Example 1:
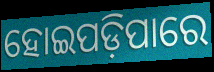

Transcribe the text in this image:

ହୋଇପଡ଼ିପାରେ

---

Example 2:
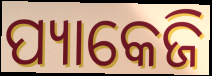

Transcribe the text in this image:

ପ୍ୟାକେଜି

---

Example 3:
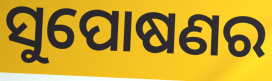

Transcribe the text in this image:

ସୁପୋଷଣର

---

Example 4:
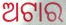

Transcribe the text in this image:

ଅଟାର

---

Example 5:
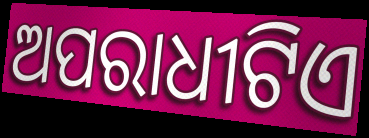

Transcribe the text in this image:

ଅପରାଧୀଟିଏ